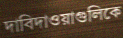
দাবিদাওয়াগুলিকে